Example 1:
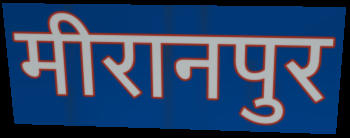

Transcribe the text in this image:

मीरानपुर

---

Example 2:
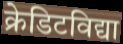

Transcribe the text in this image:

क्रेडिटविद्या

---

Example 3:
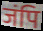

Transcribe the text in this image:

जंपि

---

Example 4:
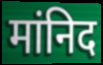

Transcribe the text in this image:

मांनिद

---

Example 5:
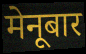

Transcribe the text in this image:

मेनूबार